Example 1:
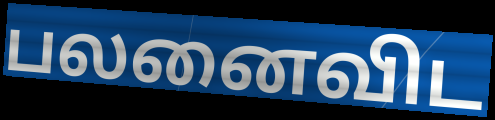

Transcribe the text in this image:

பலனைவிட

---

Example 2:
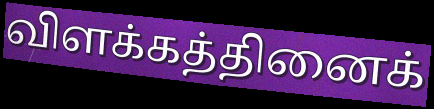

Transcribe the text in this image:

விளக்கத்தினைக்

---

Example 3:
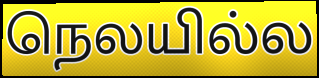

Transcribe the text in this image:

நெலயில்ல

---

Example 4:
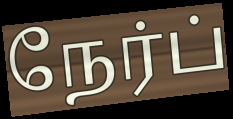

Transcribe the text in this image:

நேர்ப்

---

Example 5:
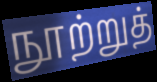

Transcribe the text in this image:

நூற்றுத்